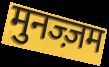
मुनज्ज़म